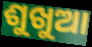
ଶୁଖୁଆ